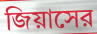
জিয়াসের